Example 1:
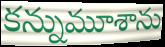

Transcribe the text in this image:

కన్నుమూశాను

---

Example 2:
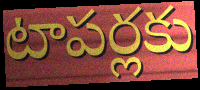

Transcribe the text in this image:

టాపర్లకు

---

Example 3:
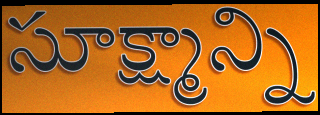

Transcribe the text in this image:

సూక్ష్మాన్ని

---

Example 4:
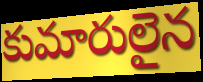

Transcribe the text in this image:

కుమారులైన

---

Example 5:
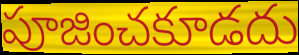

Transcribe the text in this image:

పూజించకూడదు